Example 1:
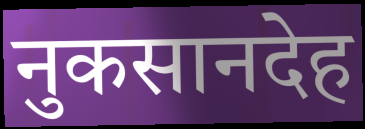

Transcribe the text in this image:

नुकसानदेह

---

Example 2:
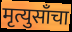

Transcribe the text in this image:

मृत्युसाँचा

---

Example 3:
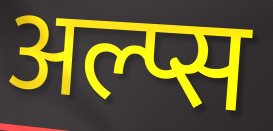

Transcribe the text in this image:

अल्प्स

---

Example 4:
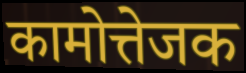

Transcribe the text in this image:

कामोत्तेजक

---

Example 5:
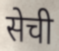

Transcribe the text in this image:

सेची